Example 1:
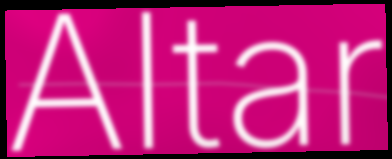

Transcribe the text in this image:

Altar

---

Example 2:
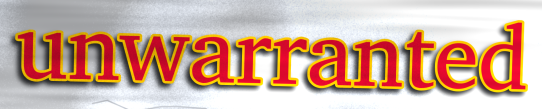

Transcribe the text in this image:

unwarranted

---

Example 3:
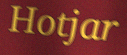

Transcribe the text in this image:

Hotjar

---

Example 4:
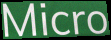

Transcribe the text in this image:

Micro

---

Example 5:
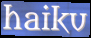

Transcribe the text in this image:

haiku